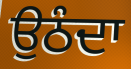
ਉਠੰਦਾ